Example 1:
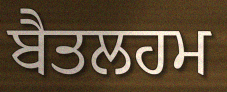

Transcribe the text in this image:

ਬੈਤਲਹਮ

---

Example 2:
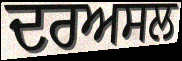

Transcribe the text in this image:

ਦਰਅਸਲ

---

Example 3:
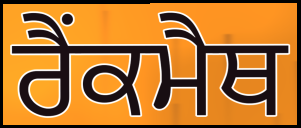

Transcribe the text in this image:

ਰੈਂਕਮੈਥ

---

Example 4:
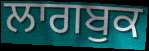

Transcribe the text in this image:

ਲਾਗਬੁਕ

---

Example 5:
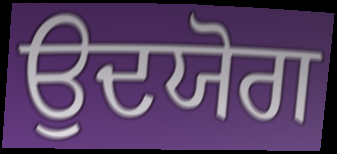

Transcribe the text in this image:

ਉਦਯੋਗ